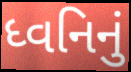
ધ્વનિનું